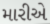
મારીએ